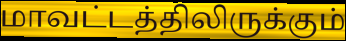
மாவட்டத்திலிருக்கும்